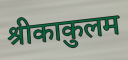
श्रीकाकुलम